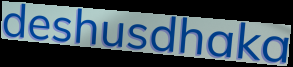
deshusdhaka